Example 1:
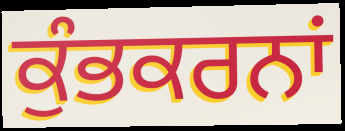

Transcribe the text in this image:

ਕੁੰਭਕਰਨਾਂ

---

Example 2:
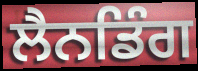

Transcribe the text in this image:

ਲੈਨਡਿੰਗ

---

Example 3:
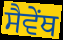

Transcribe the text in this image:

ਸੈਵੇਂਥ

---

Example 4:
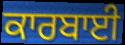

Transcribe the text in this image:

ਕਾਰਬਾਈ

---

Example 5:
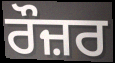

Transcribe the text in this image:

ਰੌਜ਼ਰ